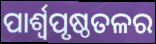
ପାର୍ଶ୍ଵପୃଷ୍ଠତଳର